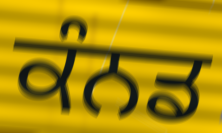
ਕੰਨਡ